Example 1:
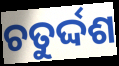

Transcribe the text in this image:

ଚତୁର୍ଦ୍ଦଶ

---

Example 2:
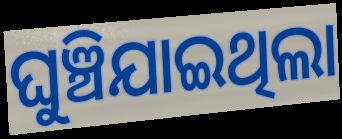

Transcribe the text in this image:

ଘୁଞ୍ଚିଯାଇଥିଲା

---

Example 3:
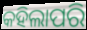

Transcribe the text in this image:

କହିଲାପରି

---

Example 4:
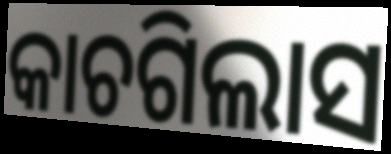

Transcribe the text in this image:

କାଚଗିଲାସ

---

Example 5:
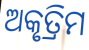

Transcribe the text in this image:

ଅକୃତ୍ରିମ